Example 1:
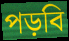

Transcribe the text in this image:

পড়বি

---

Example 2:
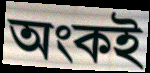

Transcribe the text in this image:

অংকই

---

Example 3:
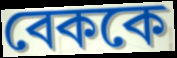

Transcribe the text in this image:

বেককে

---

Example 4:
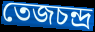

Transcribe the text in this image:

তেজচন্দ্র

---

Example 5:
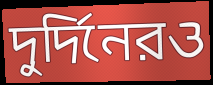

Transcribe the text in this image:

দুর্দিনেরও